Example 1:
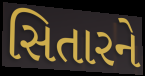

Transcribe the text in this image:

સિતારને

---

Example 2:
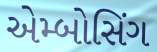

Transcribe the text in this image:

એમ્બોસિંગ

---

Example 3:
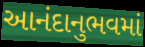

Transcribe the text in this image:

આનંદાનુભવમાં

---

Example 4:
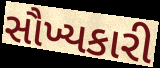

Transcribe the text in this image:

સૌખ્યકારી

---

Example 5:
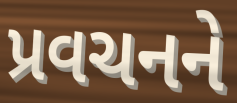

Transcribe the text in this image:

પ્રવચનને